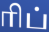
ரிப்